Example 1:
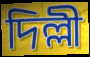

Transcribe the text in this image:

দিল্লী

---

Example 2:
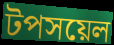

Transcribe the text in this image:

টপসয়েল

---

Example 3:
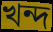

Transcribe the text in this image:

খন্দ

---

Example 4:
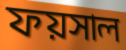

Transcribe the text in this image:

ফয়সাল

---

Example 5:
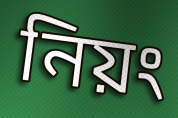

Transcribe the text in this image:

নিয়ং